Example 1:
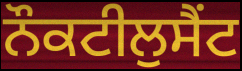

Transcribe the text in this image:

ਨੌਕਟੀਲੁਸੈਂਟ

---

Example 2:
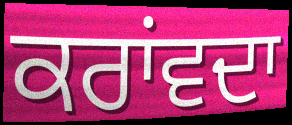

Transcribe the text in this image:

ਕਰਾਂਵਦਾ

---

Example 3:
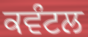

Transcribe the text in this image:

ਕਵੰਟਲ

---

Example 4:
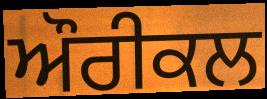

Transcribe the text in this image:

ਔਰੀਕਲ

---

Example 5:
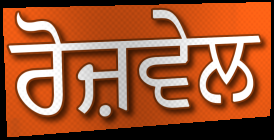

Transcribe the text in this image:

ਰੋਜ਼ਵੇਲ